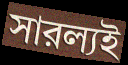
সারল্যই